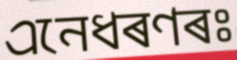
এনেধৰণৰঃ